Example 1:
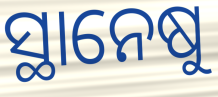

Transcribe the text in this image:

ସ୍ଥାନେଷୁ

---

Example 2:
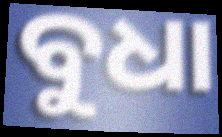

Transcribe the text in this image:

ବୁଧା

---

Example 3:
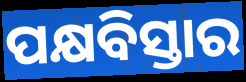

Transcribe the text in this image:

ପକ୍ଷବିସ୍ତାର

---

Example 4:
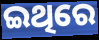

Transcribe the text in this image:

ଇଥିରେ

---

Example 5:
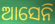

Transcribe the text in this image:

ଆସେନି